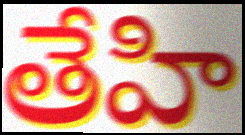
తేహి